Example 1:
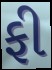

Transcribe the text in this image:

ફી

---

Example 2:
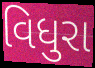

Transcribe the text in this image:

વિધુરા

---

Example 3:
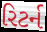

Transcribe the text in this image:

રિટર્ન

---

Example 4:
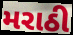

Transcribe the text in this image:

મરાઠી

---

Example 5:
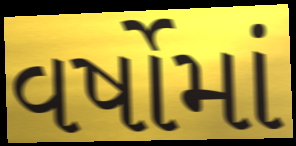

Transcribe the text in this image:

વર્ષોમાં